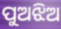
ପୁଅଝିଅ